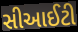
સીઆઈટી